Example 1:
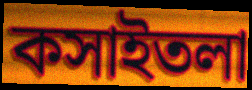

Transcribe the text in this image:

কসাইতলা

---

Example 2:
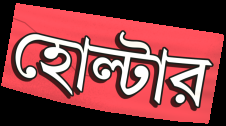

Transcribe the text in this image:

হোল্টার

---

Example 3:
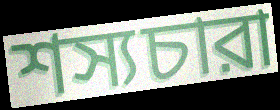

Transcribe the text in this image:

শস্যচারা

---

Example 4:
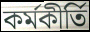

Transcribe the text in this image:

কর্মকীর্তি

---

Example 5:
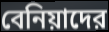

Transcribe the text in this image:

বেনিয়াদের